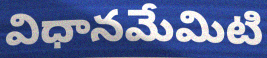
విధానమేమిటి